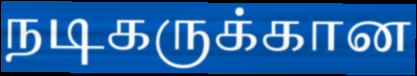
நடிகருக்கான